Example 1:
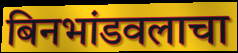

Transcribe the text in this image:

बिनभांडवलाचा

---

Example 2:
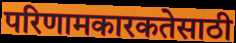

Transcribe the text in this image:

परिणामकारकतेसाठी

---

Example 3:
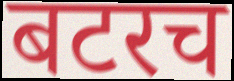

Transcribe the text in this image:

बटरच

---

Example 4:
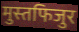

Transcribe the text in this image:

मुस्तफिजुर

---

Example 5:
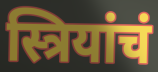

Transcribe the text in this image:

स्त्रियांचं